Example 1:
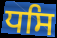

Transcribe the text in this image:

ਧਸਿ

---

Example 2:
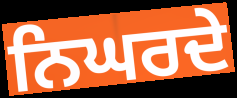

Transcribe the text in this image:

ਨਿਘਰਦੇ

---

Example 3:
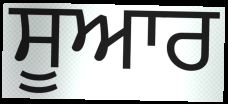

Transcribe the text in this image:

ਸੂਆਰ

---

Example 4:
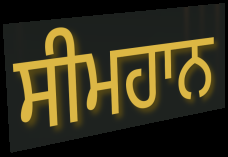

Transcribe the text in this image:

ਸੀਮਹਾਨ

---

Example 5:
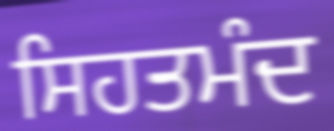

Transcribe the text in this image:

ਸਿਹਤਮੰਦ